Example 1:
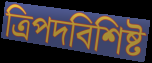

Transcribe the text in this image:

ত্রিপদবিশিষ্ট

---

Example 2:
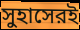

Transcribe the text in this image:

সুহাসেরই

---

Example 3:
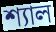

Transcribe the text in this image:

শ্যাল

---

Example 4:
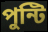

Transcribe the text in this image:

পুন্টি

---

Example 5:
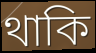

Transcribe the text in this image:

থাকি